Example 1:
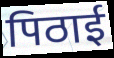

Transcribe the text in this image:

पिठाई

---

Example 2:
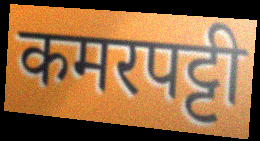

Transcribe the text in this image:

कमरपट्टी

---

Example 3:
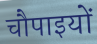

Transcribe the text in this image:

चौपाइयों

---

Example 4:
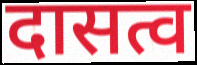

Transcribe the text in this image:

दासत्व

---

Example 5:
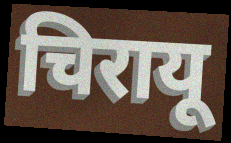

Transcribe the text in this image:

चिरायू